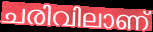
ചരിവിലാണ്